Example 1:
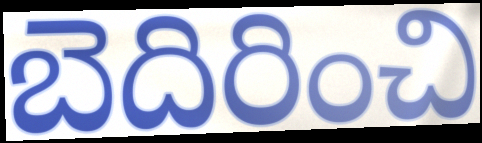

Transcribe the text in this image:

బెదిరించి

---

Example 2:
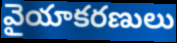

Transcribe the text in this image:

వైయాకరణులు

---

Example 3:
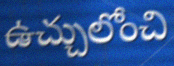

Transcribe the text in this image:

ఉచ్చులోంచి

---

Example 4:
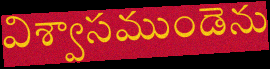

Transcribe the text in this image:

విశ్వాసముండెను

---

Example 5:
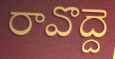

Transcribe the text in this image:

రావొద్దె